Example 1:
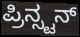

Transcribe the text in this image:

ಪ್ರಿನ್ಸ್ಟನ್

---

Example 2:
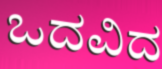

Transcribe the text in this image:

ಒದವಿದ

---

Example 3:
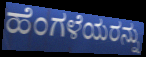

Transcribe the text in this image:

ಹೆಂಗಳೆಯರನ್ನು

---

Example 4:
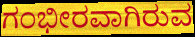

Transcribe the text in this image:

ಗಂಭೀರವಾಗಿರುವ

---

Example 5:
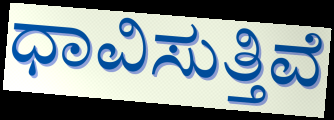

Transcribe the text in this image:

ಧಾವಿಸುತ್ತಿವೆ